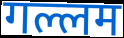
गल्लम